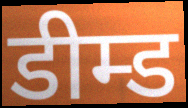
डीम्ड